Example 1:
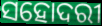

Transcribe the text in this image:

ସହୋଦରୀ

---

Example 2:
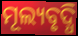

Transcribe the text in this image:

ମୂଲ୍ୟବୃଦ୍ଧି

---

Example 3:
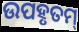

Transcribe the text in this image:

ଉପହୃତମ୍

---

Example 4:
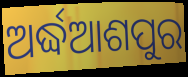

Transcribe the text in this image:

ଅର୍ଦ୍ଧଆଶପୁର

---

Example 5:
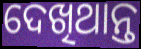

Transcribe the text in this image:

ଦେଖିଥାନ୍ତ